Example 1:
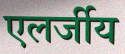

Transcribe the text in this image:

एलर्जीय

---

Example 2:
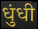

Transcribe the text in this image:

धुंधी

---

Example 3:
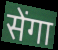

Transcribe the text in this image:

सेंगा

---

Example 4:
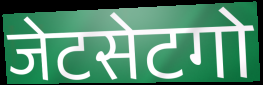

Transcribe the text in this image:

जेटसेटगो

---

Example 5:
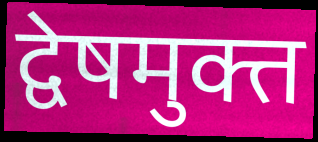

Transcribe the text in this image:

द्वेषमुक्त